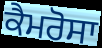
ਕੈਮਰੋਸਾ